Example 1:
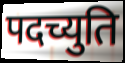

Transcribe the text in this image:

पदच्युति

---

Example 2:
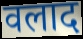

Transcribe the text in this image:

वलाद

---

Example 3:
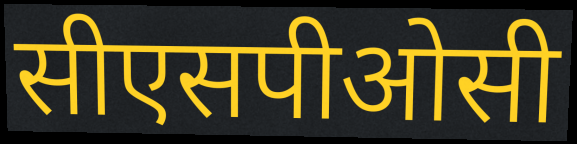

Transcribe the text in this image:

सीएसपीओसी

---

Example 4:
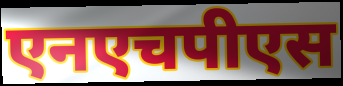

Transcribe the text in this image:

एनएचपीएस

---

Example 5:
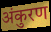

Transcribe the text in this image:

अंकुरण